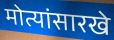
मोत्यांसारखे